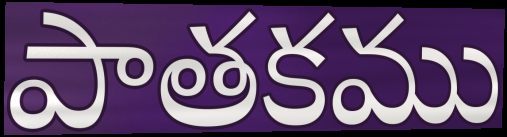
పాతకము